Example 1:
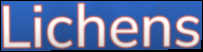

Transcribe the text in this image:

Lichens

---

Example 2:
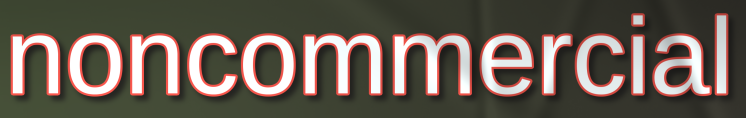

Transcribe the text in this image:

noncommercial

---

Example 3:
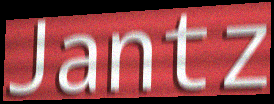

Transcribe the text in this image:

Jantz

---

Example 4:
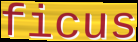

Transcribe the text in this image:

ficus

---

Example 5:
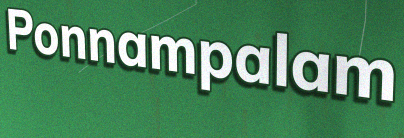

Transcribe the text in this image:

Ponnampalam